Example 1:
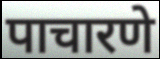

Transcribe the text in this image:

पाचारणे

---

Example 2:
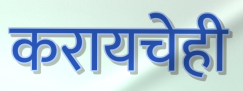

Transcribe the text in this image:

करायचेही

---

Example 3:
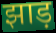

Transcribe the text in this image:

झाड़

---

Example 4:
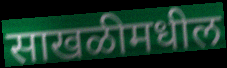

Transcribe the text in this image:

साखळीमधील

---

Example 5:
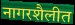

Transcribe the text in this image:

नागरशैलीत